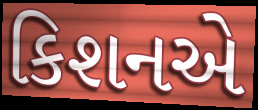
કિશનએ